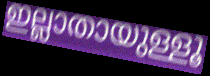
ഇല്ലാതായുള്ളൂ